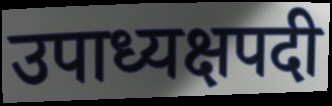
उपाध्यक्षपदी